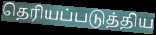
தெரியப்படுத்திய